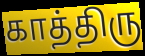
காத்திரு